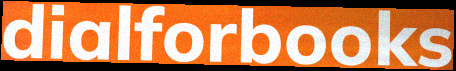
dialforbooks